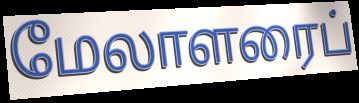
மேலாளரைப்